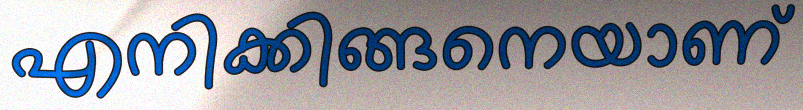
എനിക്കിങ്ങനെയാണ്